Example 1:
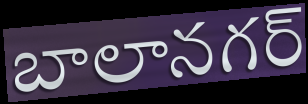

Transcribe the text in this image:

బాలానగర్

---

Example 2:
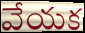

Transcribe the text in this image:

వేయక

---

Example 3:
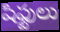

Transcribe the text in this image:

షిఫ్టులు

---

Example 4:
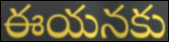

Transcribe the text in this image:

ఈయనకు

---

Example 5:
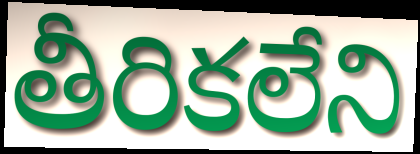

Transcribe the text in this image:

తీరికలేని